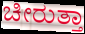
ಚೀರುತ್ತಾ